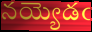
నయ్యెడఁ